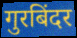
गुरबिंदर